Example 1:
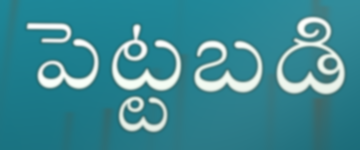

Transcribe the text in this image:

పెట్టబడి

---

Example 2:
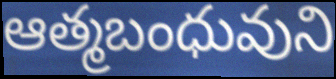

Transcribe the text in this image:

ఆత్మబంధువుని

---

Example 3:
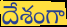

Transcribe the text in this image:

దేశంగా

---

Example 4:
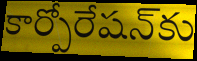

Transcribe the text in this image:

కార్పోరేషన్‌కు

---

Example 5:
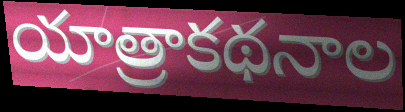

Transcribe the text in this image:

యాత్రాకథనాల